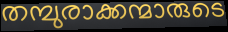
തമ്പുരാക്കന്മാരുടെ